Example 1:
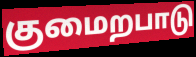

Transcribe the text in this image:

குமைறபாடு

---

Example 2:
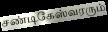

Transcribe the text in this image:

சண்டிகேஸ்வரரும்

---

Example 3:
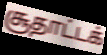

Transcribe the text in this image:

சூதாட்டக்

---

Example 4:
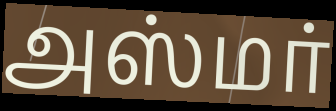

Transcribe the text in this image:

அஸ்மர்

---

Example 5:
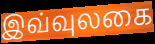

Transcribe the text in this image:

இவ்வுலகை